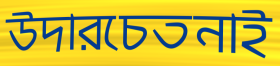
উদারচেতনাই